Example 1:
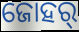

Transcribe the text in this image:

ଜୋହର୍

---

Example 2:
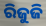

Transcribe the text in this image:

ରିଜୁଜି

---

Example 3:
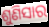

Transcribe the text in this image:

ଶୁଣିସାର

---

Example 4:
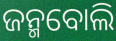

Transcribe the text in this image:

ଜନ୍ମବୋଲି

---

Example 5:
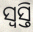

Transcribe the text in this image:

ସ୍ଵସ୍ତି